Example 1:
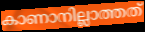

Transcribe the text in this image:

കാണാനില്ലാത്തത്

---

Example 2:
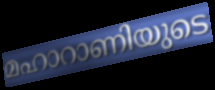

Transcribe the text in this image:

മഹാറാണിയുടെ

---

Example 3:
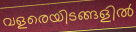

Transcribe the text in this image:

വളരെയിടങ്ങളിൽ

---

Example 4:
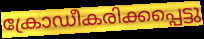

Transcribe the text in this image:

ക്രോഡീകരിക്കപ്പെട്ടു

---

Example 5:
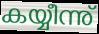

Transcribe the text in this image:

കയ്യീന്നു്